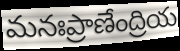
మనఃప్రాణేంద్రియ